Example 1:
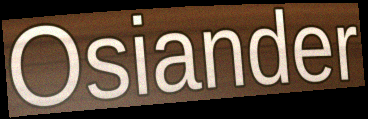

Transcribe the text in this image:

Osiander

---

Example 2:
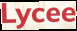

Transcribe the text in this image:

Lycee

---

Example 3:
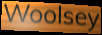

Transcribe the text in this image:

Woolsey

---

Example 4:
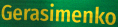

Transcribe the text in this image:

Gerasimenko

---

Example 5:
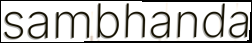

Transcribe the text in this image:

sambhanda